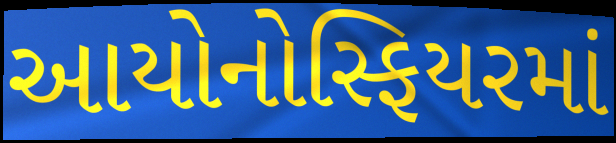
આયોનોસ્ફિયરમાં